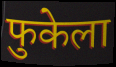
फुकेला